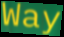
Way